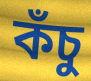
কঁচু